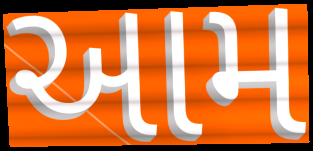
આમ